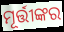
ମୂର୍ତ୍ତୀଙ୍କର